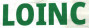
LOINC